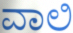
ವಾಲಿ